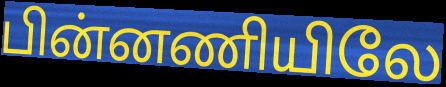
பின்னணியிலே